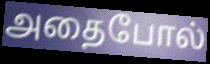
அதைபோல்